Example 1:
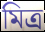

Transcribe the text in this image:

মিত্র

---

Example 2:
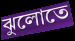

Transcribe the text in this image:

ঝুলোতে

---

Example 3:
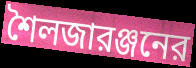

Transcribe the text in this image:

শৈলজারঞ্জনের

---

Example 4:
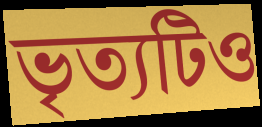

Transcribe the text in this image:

ভৃত্যটিও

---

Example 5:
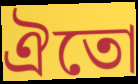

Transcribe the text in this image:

ঐতো